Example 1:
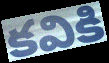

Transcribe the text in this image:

కవికి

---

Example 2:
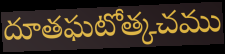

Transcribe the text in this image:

దూతఘటోత్కచము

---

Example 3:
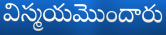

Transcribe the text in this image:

విస్మయమొందారు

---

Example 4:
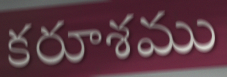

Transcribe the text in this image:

కరూశము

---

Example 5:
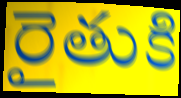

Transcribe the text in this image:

రైతుకి